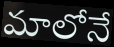
మాలోనే